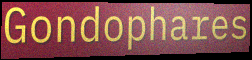
Gondophares